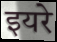
इयरे